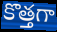
కొత్తగా